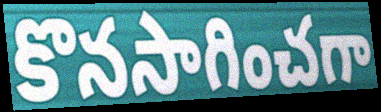
కొనసాగించగా